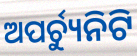
ଅପର୍ଚ୍ୟୁନିଟି